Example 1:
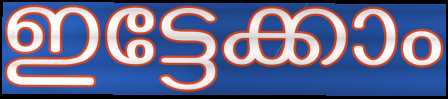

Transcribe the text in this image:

ഇട്ടേക്കാം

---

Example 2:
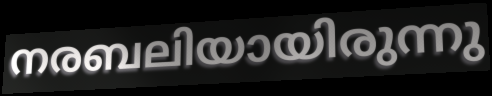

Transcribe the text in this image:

നരബലിയായിരുന്നു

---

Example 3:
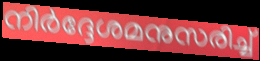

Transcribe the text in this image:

നിർദ്ദേശമനുസരിച്ച്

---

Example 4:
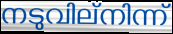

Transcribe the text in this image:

നടുവില്നിന്ന്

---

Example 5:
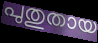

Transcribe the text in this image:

പുതുതായ